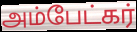
அம்பேட்கர்